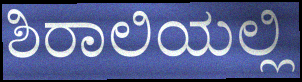
ಶಿರಾಲಿಯಲ್ಲಿ